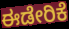
ಈಡೇರಿಕೆ